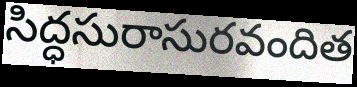
సిద్ధసురాసురవందిత